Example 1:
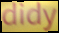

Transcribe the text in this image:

didy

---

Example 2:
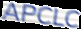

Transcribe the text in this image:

APCLC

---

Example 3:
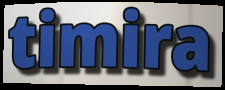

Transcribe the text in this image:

timira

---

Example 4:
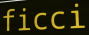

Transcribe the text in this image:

ficci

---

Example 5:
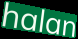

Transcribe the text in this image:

halan